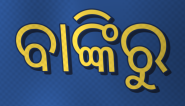
ବାଙ୍କିରୁ